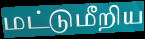
மட்டுமீறிய